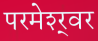
परमेश्र्वर